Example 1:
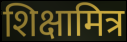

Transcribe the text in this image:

शिक्षामित्र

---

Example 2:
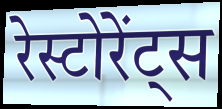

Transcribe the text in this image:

रेस्टोरेंट्स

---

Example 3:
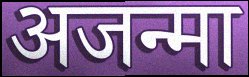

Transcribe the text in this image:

अजन्मा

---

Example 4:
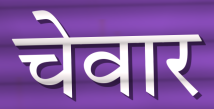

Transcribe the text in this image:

चेवार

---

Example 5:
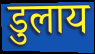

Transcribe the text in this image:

डुलाय